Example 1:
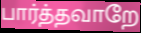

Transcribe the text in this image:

பார்த்தவாறே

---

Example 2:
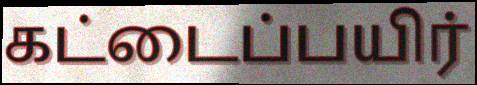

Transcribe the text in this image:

கட்டைப்பயிர்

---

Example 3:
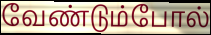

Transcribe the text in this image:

வேண்டும்போல்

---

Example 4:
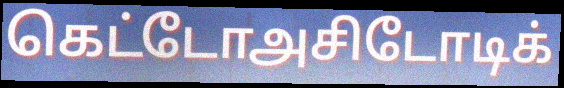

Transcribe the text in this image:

கெட்டோஅசிடோடிக்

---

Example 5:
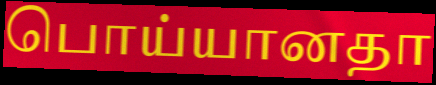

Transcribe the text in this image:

பொய்யானதா